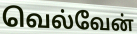
வெல்வேன்